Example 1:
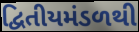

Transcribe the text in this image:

દ્વિતીયમંડળથી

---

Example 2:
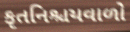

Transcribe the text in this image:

કૃતનિશ્ચયવાળો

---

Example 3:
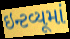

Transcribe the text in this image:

ઇન્ટવ્યૂમાં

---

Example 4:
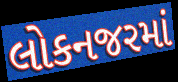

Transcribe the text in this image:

લોકનજરમાં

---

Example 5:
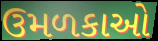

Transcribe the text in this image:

ઉમળકાઓ